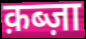
क़ब्ज़ा